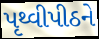
પૃથ્વીપીઠને